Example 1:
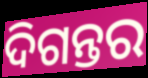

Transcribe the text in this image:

ଦିଗନ୍ତର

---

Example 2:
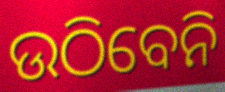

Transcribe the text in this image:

ଉଠିବେନି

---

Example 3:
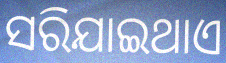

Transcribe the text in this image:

ସରିଯାଇଥାଏ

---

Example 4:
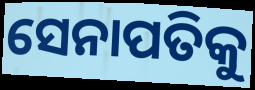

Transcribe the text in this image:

ସେନାପତିକୁ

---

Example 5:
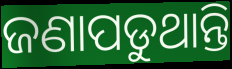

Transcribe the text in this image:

ଜଣାପଡୁଥାନ୍ତି